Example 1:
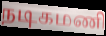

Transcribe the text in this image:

நடிகமணி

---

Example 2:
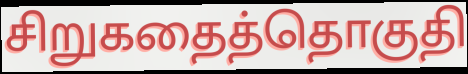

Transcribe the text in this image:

சிறுகதைத்தொகுதி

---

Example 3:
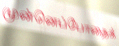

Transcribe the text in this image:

முன்னெப்போதைக்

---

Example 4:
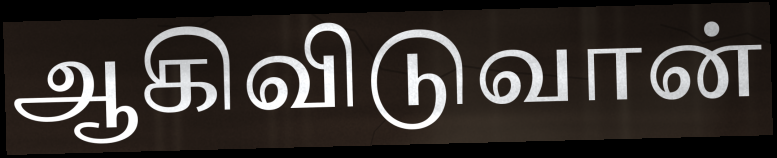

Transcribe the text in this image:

ஆகிவிடுவான்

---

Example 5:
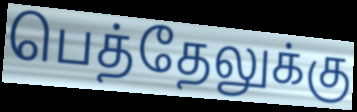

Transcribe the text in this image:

பெத்தேலுக்கு